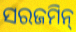
ସରଜମିନ୍